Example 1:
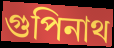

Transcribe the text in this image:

গুপিনাথ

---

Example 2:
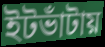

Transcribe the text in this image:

ইটভাঁটায়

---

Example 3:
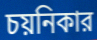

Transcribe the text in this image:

চয়নিকার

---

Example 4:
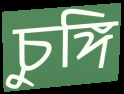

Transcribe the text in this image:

চুঙ্গি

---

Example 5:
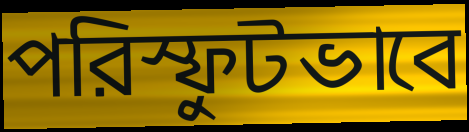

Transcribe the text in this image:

পরিস্ফুটভাবে